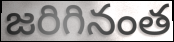
జరిగినంత